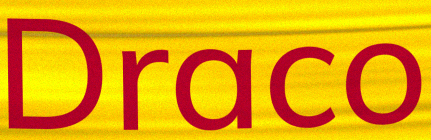
Draco